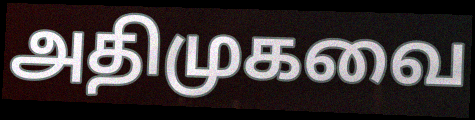
அதிமுகவை